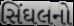
સિંઘલનો